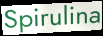
Spirulina